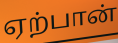
ஏற்பான்